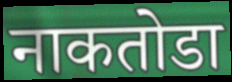
नाकतोडा